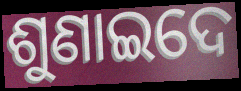
ଶୁଣାଇଦେ